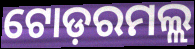
ଟୋଡ଼ରମଲ୍ଲ